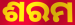
ଶରମ